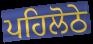
ਪਹਿਲੋਠੇ